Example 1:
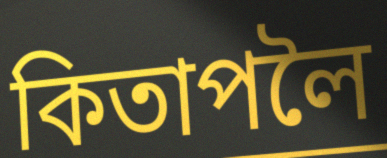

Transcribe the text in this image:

কিতাপলৈ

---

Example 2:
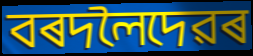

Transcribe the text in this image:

বৰদলৈদেৱৰ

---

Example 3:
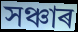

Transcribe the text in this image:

সঞ্চাৰ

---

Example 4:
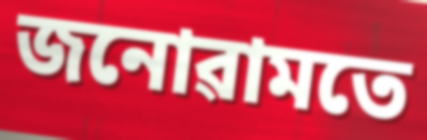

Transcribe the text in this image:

জনোৱামতে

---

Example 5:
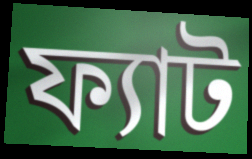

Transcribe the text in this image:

ফ্যাট